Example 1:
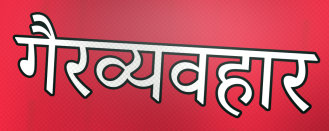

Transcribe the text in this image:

गैरव्यवहार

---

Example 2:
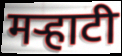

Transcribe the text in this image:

मऱ्हाटी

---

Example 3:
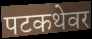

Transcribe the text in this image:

पटकथेवर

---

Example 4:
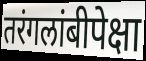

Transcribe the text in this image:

तरंगलांबीपेक्षा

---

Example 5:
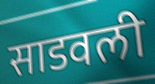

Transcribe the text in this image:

साडवली